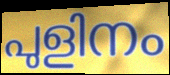
പുളിനം